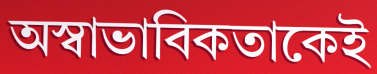
অস্বাভাবিকতাকেই